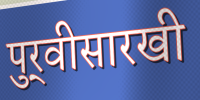
पुर्वीसारखी